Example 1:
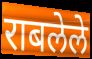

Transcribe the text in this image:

राबलेले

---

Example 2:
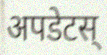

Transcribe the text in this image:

अपडेटस्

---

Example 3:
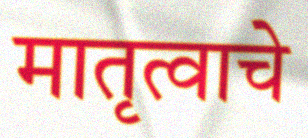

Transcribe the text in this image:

मातृत्वाचे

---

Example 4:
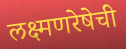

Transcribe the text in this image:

लक्ष्मणरेषेची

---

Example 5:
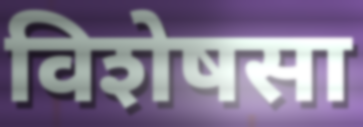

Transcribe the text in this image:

विशेषसा